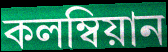
কলম্বিয়ান